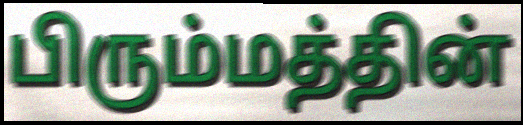
பிரும்மத்தின்